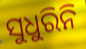
ସୁଧୁରିନି